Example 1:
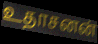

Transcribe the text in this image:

உதாசனன்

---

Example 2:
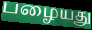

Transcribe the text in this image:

பழையது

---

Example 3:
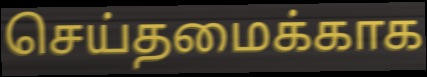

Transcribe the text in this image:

செய்தமைக்காக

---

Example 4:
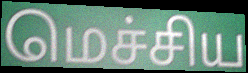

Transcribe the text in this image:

மெச்சிய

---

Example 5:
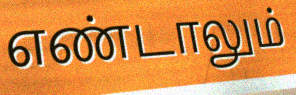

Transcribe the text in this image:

எண்டாலும்